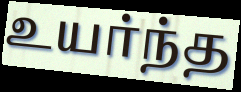
உயர்ந்த